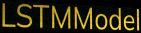
LSTMModel